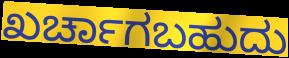
ಖರ್ಚಾಗಬಹುದು